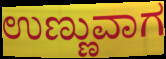
ಉಣ್ಣುವಾಗ